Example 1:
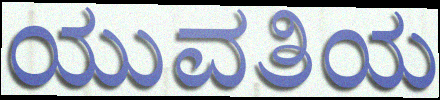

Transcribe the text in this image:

ಯುವತಿಯ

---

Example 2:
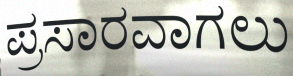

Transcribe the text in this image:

ಪ್ರಸಾರವಾಗಲು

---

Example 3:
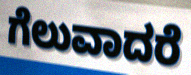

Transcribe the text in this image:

ಗೆಲುವಾದರೆ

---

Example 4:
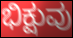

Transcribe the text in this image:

ಭಿಕ್ಷುವು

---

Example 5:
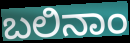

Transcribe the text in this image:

ಬಲಿನಾಂ